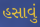
હસાવું